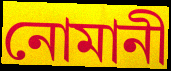
নোমানী